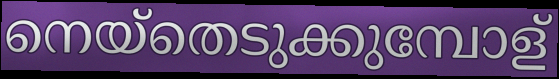
നെയ്തെടുക്കുമ്പോള്